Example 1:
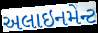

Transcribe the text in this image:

અલાઇનમેન્ટ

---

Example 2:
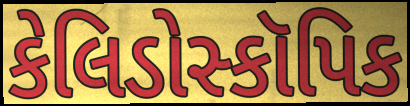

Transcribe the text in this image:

કેલિડોસ્કૉપિક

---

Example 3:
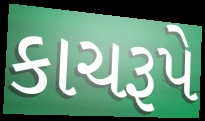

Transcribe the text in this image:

કાચરૂપે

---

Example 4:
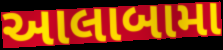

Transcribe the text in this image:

આલાબામા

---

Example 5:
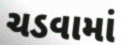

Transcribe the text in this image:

ચડવામાં